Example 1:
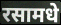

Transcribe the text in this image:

रसामधे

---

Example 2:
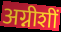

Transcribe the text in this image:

अग्नीशीं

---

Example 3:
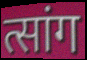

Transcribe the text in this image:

त्सांग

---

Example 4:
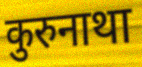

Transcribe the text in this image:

कुरुनाथा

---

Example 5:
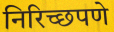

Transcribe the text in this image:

निरिच्छपणे